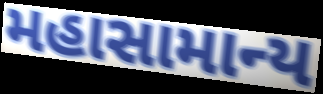
મહાસામાન્ય